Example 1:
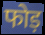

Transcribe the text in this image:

फोड़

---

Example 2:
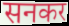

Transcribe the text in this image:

सनकर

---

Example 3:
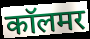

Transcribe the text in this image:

कॉलमर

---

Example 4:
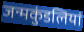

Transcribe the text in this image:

जन्मकुंडलियां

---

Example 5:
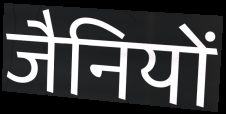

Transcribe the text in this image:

जैनियों